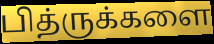
பித்ருக்களை